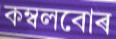
কম্বলবোৰ